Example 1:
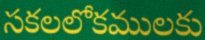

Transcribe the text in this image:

సకలలోకములకు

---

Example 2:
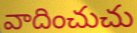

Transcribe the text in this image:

వాదించుచు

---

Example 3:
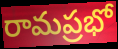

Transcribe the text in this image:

రామప్రభో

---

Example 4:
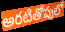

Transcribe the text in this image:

అరటితోపులో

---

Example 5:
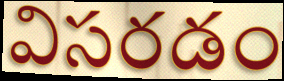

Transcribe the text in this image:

విసరడం